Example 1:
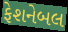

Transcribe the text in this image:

ફેશનેબલ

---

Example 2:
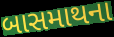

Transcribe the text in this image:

બાસમાથના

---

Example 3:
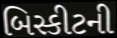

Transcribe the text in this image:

બિસ્કીટની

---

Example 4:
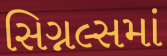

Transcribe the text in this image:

સિગ્નલ્સમાં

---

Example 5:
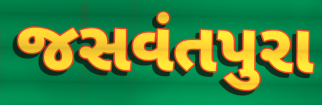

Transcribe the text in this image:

જસવંતપુરા